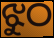
ଝୁଠ